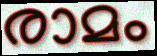
രാമം